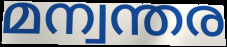
മന്വന്തര